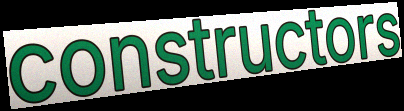
constructors